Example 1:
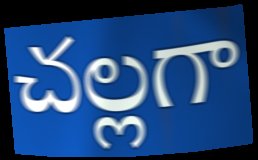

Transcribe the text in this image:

చల్లగా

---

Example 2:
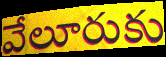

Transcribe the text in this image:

వేలూరుకు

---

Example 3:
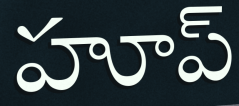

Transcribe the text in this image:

హూప్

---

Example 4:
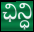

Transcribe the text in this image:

ఛిన్ధి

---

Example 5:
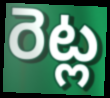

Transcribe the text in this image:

రెట్ల